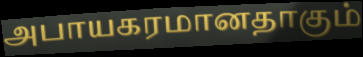
அபாயகரமானதாகும்